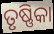
ତୃଷ୍ଣିକା